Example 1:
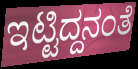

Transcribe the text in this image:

ಇಟ್ಟಿದ್ದನಂತೆ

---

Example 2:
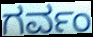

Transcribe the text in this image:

ಗರ್ವಂ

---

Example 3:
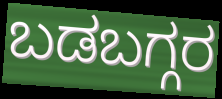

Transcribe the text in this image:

ಬಡಬಗ್ಗರ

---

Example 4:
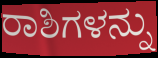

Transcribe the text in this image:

ರಾಶಿಗಳನ್ನು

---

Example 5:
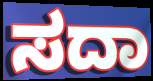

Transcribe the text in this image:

ಸದಾ